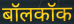
बॉलकॉक